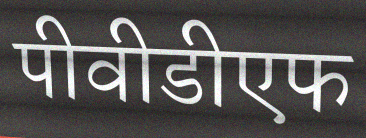
पीवीडीएफ